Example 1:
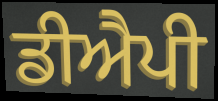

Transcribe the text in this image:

ਡੀਐਪੀ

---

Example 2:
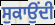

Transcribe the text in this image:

ਸੁਕਾਉਂਦੀ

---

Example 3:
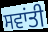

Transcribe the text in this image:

ਸਵਾਂਤੀ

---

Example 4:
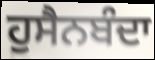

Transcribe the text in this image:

ਹੁਸੈਨਬੰਦਾ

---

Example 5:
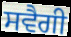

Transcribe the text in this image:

ਸਵੈਗੀ